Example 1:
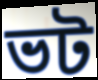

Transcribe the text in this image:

ভট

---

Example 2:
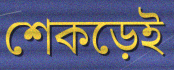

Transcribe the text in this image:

শেকড়েই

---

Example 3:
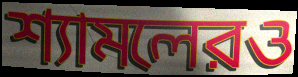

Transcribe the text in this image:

শ্যামলেরও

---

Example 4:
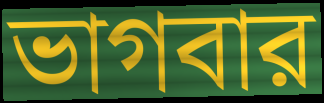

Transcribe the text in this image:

ভাগবার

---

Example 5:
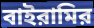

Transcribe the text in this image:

বাইরামির